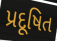
પ્રદૂષિત